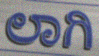
ಲಾಗಿ